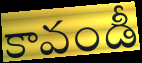
కావండీ